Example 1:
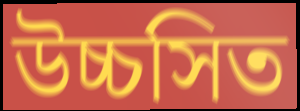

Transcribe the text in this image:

উচ্চসিত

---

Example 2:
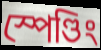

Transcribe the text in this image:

স্পেণ্ডিং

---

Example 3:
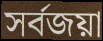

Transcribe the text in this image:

সৰ্বজয়া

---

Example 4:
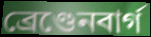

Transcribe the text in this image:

ব্ৰেণ্ডেনবাৰ্গ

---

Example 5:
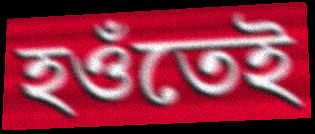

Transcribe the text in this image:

হওঁতেই